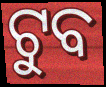
ଟୁବ